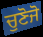
ਚੁਣੋਜੋ